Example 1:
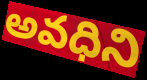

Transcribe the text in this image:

అవధిని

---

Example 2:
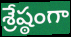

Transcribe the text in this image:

శ్రేష్ఠంగా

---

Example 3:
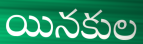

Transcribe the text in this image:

యినకుల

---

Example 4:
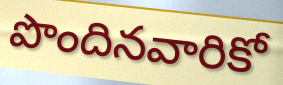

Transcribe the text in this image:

పొందినవారికో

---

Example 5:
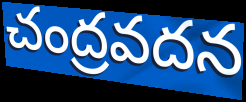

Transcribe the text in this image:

చంద్రవదన